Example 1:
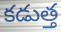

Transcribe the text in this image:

కడుత్త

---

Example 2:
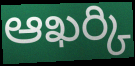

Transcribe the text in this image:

ఆఖర్కి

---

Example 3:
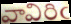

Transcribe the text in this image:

వావిరిఁ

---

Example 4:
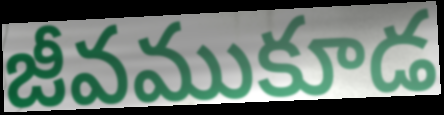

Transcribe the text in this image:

జీవముకూడ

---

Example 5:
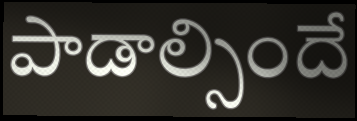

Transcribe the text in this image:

పాడాల్సిందే